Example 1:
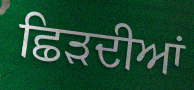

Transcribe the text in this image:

ਛਿੜਦੀਆਂ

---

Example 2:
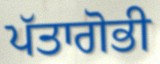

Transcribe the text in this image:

ਪੱਤਾਗੋਭੀ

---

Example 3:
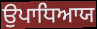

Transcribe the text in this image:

ਉਪਾਧਿਆਯ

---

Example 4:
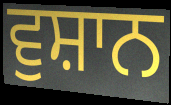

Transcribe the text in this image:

ਵੁਸ਼ਾਨ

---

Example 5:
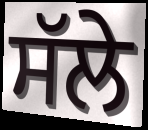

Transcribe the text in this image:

ਸੱਲੇ